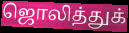
ஜொலித்துக்